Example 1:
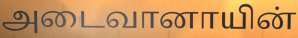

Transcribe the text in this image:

அடைவானாயின்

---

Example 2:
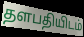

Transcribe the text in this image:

தளபதியிடம்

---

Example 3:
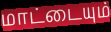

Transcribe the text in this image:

மாட்டையும்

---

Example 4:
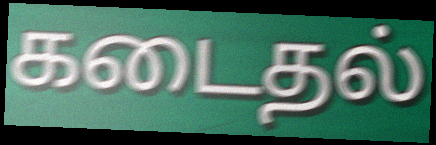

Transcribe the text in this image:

கடைதல்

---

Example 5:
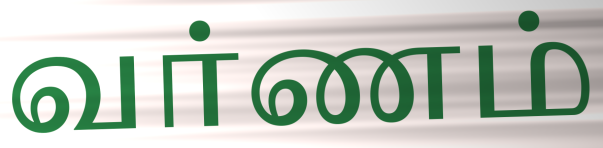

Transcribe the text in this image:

வர்ணம்